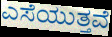
ಎಸೆಯುತ್ತವೆ